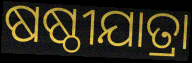
ଷଷ୍ଠୀଯାତ୍ରା